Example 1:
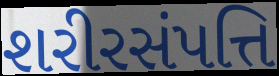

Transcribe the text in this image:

શરીરસંપત્તિ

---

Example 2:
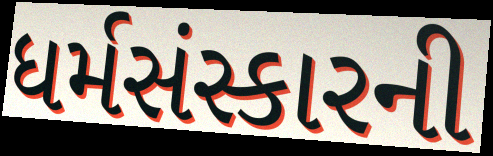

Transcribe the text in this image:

ધર્મસંસ્કારની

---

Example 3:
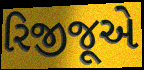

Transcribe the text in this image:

રિજીજૂએ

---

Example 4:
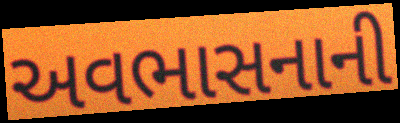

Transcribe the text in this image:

અવભાસનાની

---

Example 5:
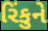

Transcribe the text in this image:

રિંકુને